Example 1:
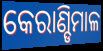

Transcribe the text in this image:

କେରାଣ୍ଡିମାଳ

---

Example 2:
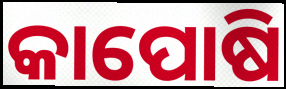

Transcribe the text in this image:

କାପୋଷି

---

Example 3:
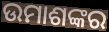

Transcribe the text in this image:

ଉମାଶଙ୍କର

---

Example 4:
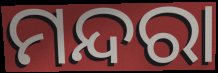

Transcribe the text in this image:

ମନ୍ଦରା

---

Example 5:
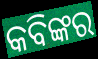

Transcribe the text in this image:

କବିଙ୍କର